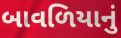
બાવળિયાનું